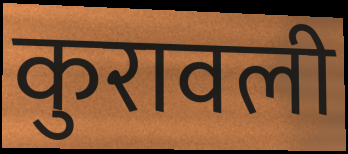
कुरावली